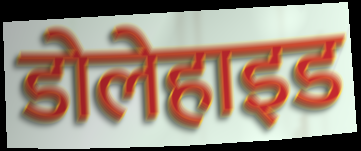
डोलेहाइड